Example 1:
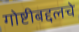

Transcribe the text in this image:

गोष्टीबद्दलचे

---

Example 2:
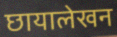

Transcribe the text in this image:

छायालेखन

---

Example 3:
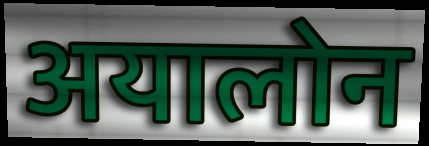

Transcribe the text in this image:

अयालोन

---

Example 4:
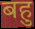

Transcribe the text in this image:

बहु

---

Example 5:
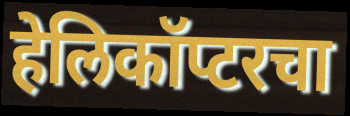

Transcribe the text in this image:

हेलिकॉप्टरचा